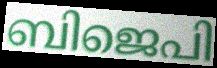
ബിജെപി